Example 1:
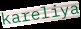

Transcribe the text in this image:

kareliya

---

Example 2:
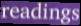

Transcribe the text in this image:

readings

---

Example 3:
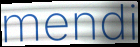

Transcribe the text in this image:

mendi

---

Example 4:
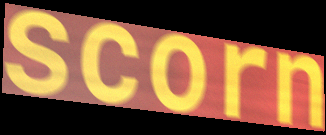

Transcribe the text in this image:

scorn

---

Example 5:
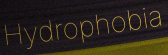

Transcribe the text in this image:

Hydrophobia